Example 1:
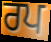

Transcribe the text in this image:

ਰਪ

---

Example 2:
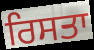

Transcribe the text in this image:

ਰਿਸਤਾ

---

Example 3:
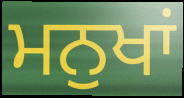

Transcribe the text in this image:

ਮਨੁਖਾਂ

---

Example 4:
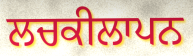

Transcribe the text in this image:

ਲਚਕੀਲਾਪਨ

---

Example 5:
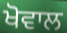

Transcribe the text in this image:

ਖੋਵਾਲ